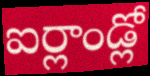
ఐర్లాండ్లో